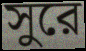
সুরে